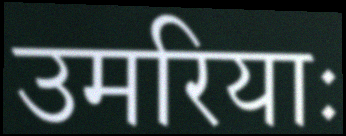
उमरियाः